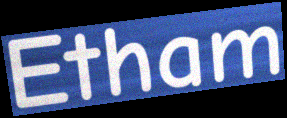
Etham